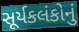
સૂર્યકલંકોનું